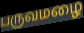
பருவமழை